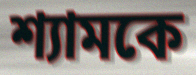
শ্যামকে